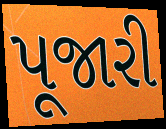
પૂજારી